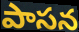
పాసన